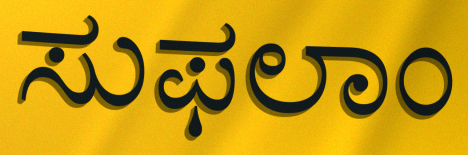
ಸುಫಲಾಂ